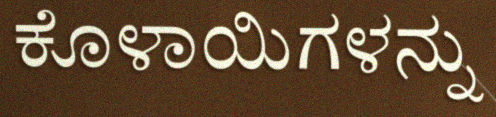
ಕೊಳಾಯಿಗಳನ್ನು